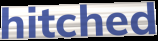
hitched